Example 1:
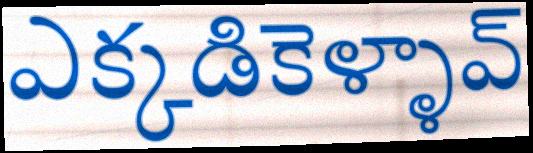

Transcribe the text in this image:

ఎక్కడికెళ్ళావ్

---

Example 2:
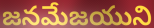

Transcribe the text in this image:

జనమేజయుని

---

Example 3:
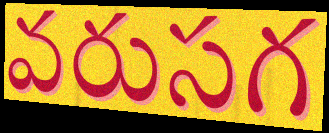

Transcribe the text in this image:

వరుసగ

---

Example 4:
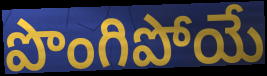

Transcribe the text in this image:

పొంగిపోయే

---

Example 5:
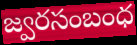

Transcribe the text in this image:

జ్వరసంబంధ